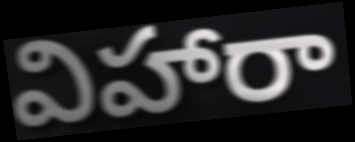
విహారా